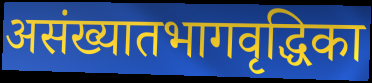
असंख्यातभागवृद्धिका